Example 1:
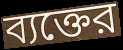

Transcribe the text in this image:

ব্যক্তের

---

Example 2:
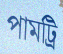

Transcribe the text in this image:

পামট্রি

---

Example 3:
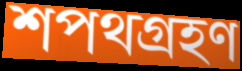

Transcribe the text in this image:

শপথগ্রহণ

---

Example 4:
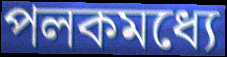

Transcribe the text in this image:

পলকমধ্যে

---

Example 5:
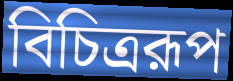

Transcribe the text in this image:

বিচিত্ররূপ